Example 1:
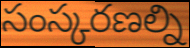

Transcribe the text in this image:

సంస్కరణల్ని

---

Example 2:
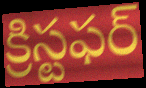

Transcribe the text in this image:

క్రిస్టఫర్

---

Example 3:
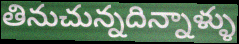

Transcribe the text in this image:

తినుచున్నదిన్నాళ్ళు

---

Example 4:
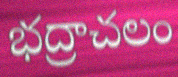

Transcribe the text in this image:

భద్రాచలం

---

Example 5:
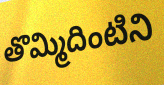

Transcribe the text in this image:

తొమ్మిదింటిని